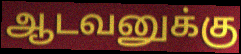
ஆடவனுக்கு